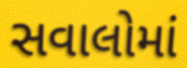
સવાલોમાં